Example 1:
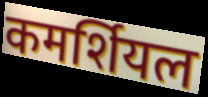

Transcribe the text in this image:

कमर्शियल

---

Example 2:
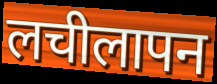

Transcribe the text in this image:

लचीलापन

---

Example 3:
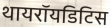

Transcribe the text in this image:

थायरॉयडिटिस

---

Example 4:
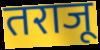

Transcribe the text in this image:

तराजू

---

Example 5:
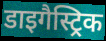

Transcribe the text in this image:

डाइगैस्ट्रिक